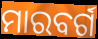
ମାରବର୍ଗ